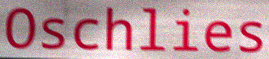
Oschlies